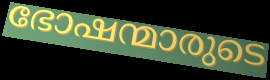
ഭോഷന്മാരുടെ